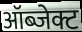
ऑब्जेक्ट